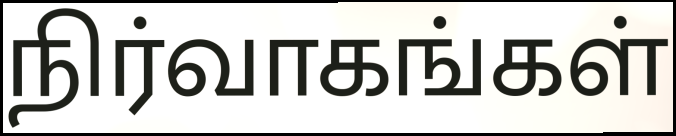
நிர்வாகங்கள்